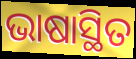
ଭାଷାସ୍ଥିତ